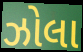
ઝોલા